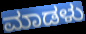
ಮಾಡಳು